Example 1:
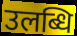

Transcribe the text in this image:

उलब्धि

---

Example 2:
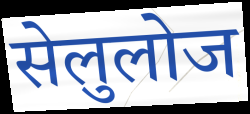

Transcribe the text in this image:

सेलुलोज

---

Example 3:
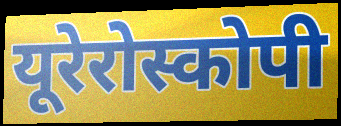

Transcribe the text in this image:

यूरेरोस्कोपी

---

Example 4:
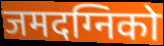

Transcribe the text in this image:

जमदग्निको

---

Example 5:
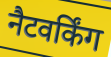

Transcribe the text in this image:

नैटवर्किंग